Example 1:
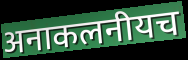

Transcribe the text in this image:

अनाकलनीयच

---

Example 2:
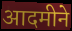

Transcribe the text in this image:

आदमीने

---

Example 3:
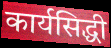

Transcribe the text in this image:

कार्यसिद्धी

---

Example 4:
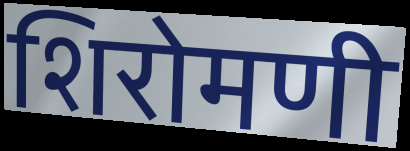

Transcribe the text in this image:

शिरोमणी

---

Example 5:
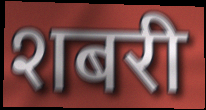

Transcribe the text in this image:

शबरी